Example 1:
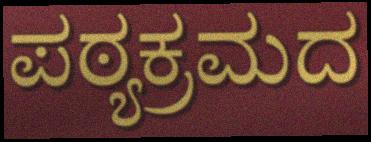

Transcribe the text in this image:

ಪಠ್ಯಕ್ರಮದ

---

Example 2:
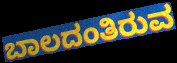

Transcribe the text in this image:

ಬಾಲದಂತಿರುವ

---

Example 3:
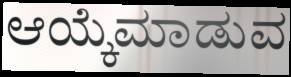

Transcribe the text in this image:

ಆಯ್ಕೆಮಾಡುವ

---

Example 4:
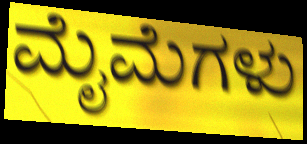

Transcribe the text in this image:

ಮೈಮೆಗಳು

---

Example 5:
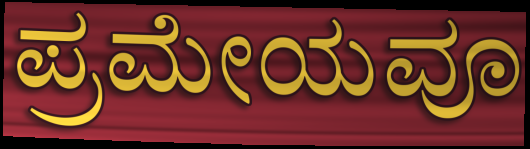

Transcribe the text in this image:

ಪ್ರಮೇಯವೂ